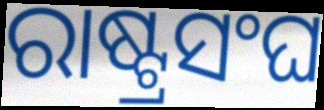
ରାଷ୍ଟ୍ରସଂଘ